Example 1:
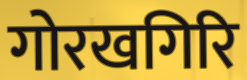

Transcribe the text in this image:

गोरखगिरि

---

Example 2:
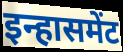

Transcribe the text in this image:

इन्हासमेंट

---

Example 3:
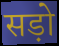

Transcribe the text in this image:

सड़ो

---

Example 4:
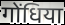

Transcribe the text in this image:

गोंधिया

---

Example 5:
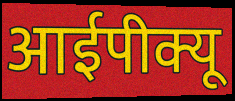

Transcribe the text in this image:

आईपीक्यू